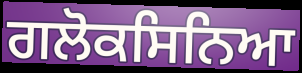
ਗਲੋਕਸਿਨਿਆ